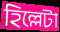
হিল্লেটা